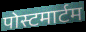
पोस्‍टमार्टम